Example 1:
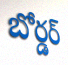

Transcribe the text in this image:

బోర్డర్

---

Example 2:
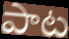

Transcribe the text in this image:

పాట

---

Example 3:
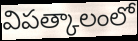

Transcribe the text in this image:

విపత్కాలంలో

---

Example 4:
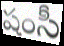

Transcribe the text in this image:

షంసీ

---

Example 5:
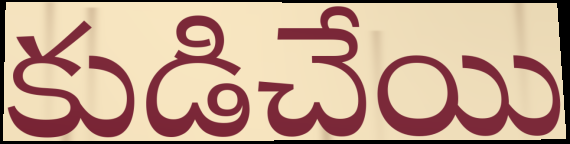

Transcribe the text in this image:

కుడిచేయి